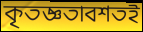
কৃতজ্ঞতাবশতই